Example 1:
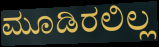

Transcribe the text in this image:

ಮೂಡಿರಲಿಲ್ಲ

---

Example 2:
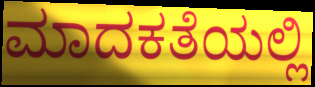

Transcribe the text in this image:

ಮಾದಕತೆಯಲ್ಲಿ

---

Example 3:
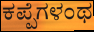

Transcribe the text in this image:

ಕಪ್ಪೆಗಳಂಥ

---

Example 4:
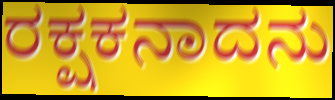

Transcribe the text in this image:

ರಕ್ಷಕನಾದನು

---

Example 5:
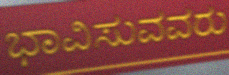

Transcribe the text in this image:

ಭಾವಿಸುವವರು